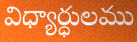
విధ్యార్ధులము